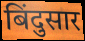
बिंदुसार